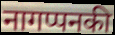
नागप्पनकी